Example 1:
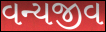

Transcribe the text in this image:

વન્યજીવ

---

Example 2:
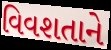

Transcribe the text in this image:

વિવશતાને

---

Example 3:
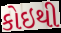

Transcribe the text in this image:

કોઇથી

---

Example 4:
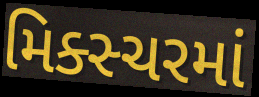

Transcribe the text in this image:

મિક્સ્ચરમાં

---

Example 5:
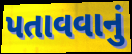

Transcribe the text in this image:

પતાવવાનું